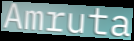
Amruta